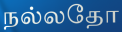
நல்லதோ